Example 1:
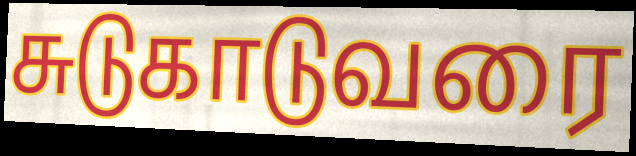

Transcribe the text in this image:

சுடுகாடுவரை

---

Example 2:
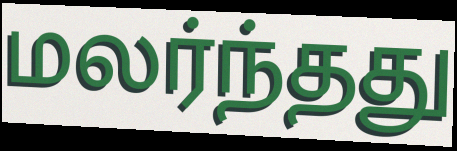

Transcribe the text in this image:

மலர்ந்தது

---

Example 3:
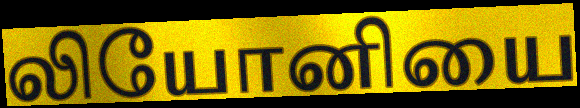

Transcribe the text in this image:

லியோனியை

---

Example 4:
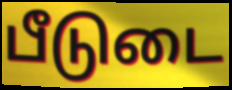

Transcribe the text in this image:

பீடுடை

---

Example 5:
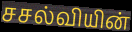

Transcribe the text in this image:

சசல்வியின்